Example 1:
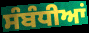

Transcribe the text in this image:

ਸੰਬੰਧੀਆਂ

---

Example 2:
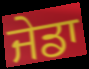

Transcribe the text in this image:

ਜੇਡਾ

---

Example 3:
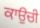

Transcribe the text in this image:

ਕਾਉਚੀ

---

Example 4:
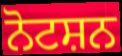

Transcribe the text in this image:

ਨੋਟਸ਼ਨ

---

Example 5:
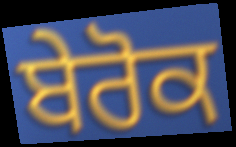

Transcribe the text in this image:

ਬੇਰੋਕ